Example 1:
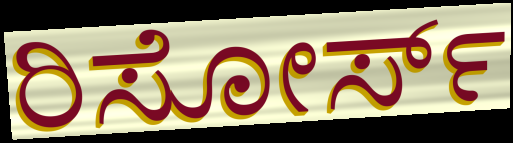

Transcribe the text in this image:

ರಿಸೋರ್ಸ್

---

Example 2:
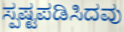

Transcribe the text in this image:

ಸ್ಪಷ್ಟಪಡಿಸಿದವು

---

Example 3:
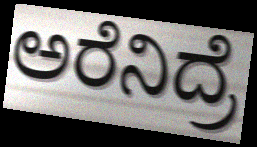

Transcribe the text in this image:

ಅರೆನಿದ್ರೆ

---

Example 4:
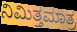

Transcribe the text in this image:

ನಿಮಿತ್ತಮಾತ್ರ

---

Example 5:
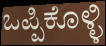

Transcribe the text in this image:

ಒಪ್ಪಿಕೊಳ್ಳಿ